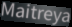
Maitreya